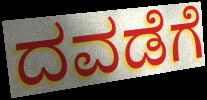
ದವಡೆಗೆ